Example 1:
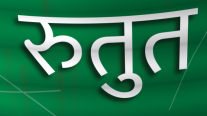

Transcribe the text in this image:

रुतुत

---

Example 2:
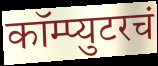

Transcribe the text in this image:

कॉम्प्युटरचं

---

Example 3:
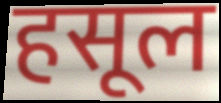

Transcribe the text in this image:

हसूल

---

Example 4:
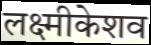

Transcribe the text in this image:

लक्ष्मीकेशव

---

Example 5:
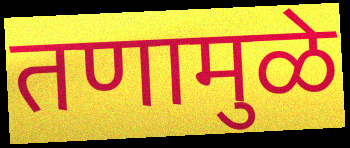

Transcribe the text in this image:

तणामुळे